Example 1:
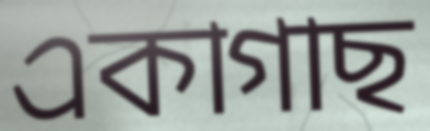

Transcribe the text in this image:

একাগাছ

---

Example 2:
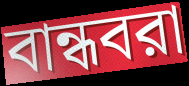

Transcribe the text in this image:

বান্ধবরা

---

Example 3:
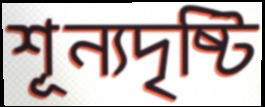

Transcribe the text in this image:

শূন্যদৃষ্টি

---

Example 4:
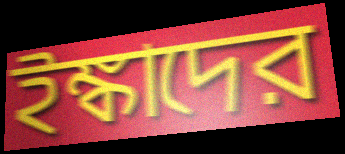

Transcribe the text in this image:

ইঙ্কাদের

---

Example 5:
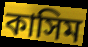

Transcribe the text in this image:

কাসিম